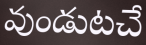
వుండుటచే